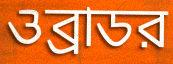
ওব্রাডর